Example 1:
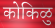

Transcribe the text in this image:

कोकिळु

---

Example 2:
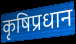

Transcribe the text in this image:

कृषिप्रधान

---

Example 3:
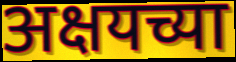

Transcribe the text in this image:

अक्षयच्या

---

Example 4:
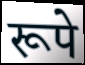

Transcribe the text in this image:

रूपे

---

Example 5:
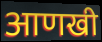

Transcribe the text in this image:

आणखी